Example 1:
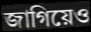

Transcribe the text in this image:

জাগিয়েও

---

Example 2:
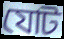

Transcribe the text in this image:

যোট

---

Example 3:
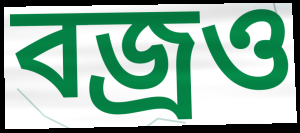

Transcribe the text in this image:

বজ্রও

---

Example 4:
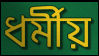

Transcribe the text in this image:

ধর্মীয়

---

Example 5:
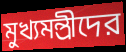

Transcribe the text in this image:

মুখ্যমন্ত্রীদের